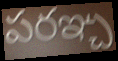
పరఞ్చ